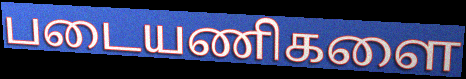
படையணிகளை